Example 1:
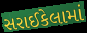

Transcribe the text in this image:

સરાઈકેલામાં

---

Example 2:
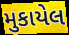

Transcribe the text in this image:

મુકાયેલ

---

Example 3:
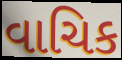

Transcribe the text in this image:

વાચિક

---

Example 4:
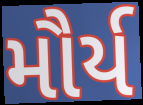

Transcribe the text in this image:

મૌર્ય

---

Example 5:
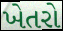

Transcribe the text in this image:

ખેતરો